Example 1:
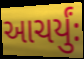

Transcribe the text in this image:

આચર્યુંઃ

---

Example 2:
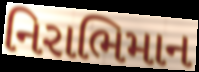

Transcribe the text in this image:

નિરાભિમાન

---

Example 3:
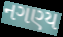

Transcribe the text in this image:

નગણ્ય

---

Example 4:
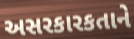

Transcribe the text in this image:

અસરકારકતાને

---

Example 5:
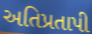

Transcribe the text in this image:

અતિપ્રતાપી